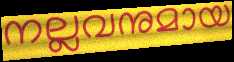
നല്ലവനുമായ